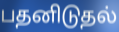
பதனிடுதல்